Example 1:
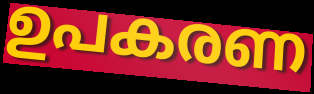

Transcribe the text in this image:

ഉപകരണ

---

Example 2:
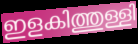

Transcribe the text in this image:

ഇളകിത്തുള്ളി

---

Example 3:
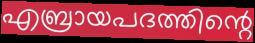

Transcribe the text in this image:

എബ്രായപദത്തിന്റെ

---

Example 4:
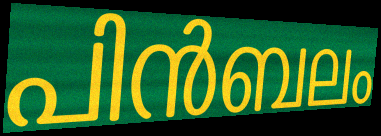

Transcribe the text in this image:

പിൻബലം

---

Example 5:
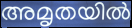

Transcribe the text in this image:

അമൃതയിൽ